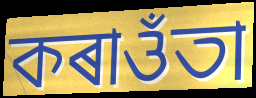
কৰাওঁতা